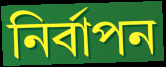
নির্বাপন